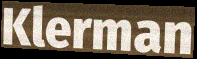
Klerman